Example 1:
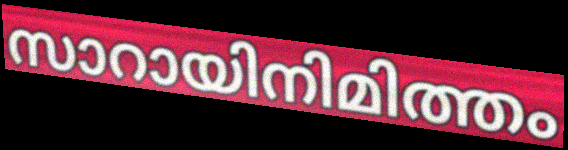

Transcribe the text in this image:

സാറായിനിമിത്തം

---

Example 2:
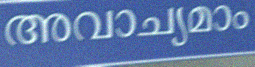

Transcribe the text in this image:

അവാച്യമാം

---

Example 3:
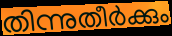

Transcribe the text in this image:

തിന്നുതീർക്കും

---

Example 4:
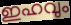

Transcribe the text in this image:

ഇഹവും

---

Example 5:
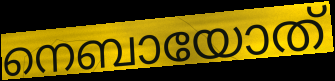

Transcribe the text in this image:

നെബായോത്